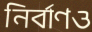
নির্বাণও